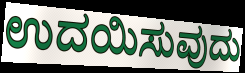
ಉದಯಿಸುವುದು